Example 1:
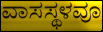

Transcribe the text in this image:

ವಾಸಸ್ಥಳವೂ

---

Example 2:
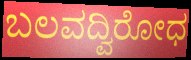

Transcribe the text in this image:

ಬಲವದ್ವಿರೋಧ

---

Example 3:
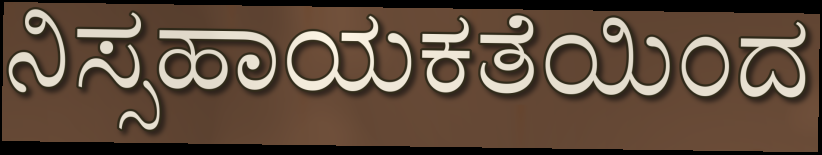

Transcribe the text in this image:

ನಿಸ್ಸಹಾಯಕತೆಯಿಂದ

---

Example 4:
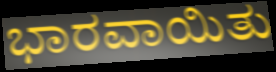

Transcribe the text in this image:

ಭಾರವಾಯಿತು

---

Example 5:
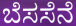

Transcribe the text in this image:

ಬೆಸಸೆನೆ